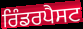
ਰਿੰਡਰਪੈਸਟ